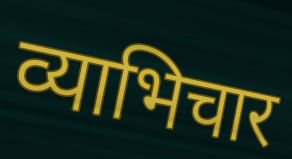
व्याभिचार